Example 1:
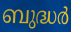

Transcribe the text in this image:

ബുദ്ധർ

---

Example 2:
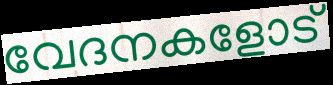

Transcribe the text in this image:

വേദനകളോട്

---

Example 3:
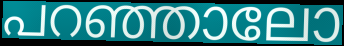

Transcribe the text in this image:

പറഞ്ഞാലോ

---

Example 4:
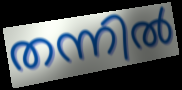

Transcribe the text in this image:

തന്നിൽ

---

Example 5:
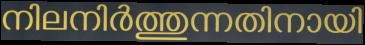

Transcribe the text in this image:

നിലനിർത്തുന്നതിനായി